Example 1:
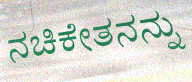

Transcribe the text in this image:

ನಚಿಕೇತನನ್ನು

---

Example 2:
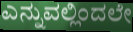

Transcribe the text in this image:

ಎನ್ನುವಲ್ಲಿಂದಲೇ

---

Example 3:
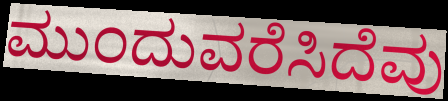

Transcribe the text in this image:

ಮುಂದುವರೆಸಿದೆವು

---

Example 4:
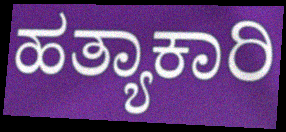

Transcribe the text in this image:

ಹತ್ಯಾಕಾರಿ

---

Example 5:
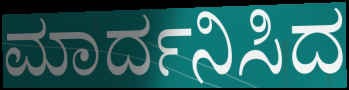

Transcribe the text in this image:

ಮಾರ್ದನಿಸಿದ